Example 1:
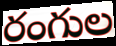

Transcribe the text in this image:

రంగుల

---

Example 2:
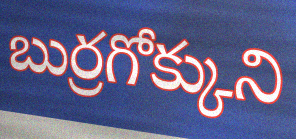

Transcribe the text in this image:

బుర్రగోక్కుని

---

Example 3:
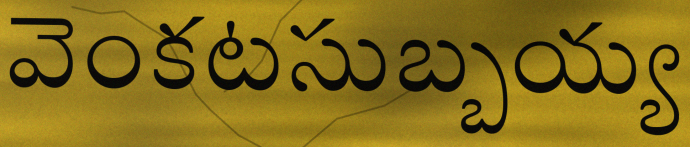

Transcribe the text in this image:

వెంకటసుబ్బయ్య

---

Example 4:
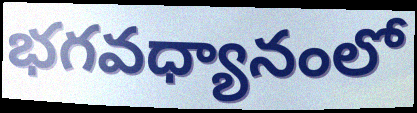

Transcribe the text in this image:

భగవధ్యానంలో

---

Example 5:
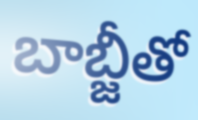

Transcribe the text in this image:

బాబ్జీతో